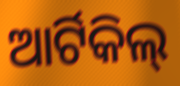
ଆର୍ଟିକିଲ୍